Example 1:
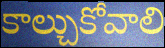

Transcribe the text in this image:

కాల్చుకోవాలి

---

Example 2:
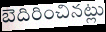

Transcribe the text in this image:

బెదిరించినట్లు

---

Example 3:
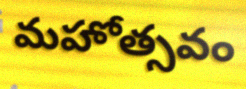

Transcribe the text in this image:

మహోత్సవం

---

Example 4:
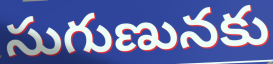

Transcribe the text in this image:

సుగుణునకు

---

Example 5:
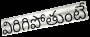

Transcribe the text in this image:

విరిగిపోతుంటే